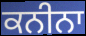
ਕਨੀਨਾ